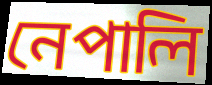
নেপালি